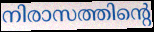
നിരാസത്തിന്റെ